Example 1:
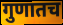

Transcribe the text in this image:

गुणातच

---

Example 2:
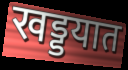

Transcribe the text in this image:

खड्डयात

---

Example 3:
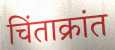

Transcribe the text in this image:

चिंताक्रांत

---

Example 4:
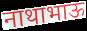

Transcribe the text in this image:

नाथाभाऊ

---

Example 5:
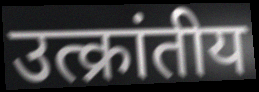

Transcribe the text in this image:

उत्क्रांतीय